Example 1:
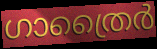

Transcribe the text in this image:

ഗാത്രൈർ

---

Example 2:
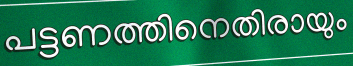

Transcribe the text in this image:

പട്ടണത്തിനെതിരായും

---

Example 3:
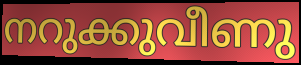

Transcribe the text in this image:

നറുക്കുവീണു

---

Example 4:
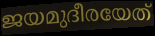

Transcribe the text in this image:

ജയമുദീരയേത്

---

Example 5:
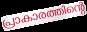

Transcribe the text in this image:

പ്രാകാരത്തിന്റെ